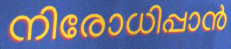
നിരോധിപ്പാൻ